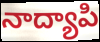
నాద్యాపి